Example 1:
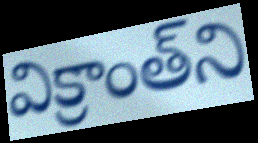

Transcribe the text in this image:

విక్రాంత్‌ని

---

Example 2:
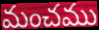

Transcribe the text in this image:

మంచము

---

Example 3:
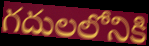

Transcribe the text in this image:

గదులలోనికి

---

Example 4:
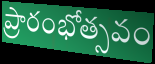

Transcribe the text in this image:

ప్రారంభోత్సవం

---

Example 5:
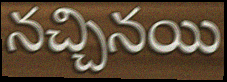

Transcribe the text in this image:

నచ్చినయి